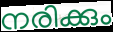
നരിക്കും